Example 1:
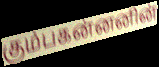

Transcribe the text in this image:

கும்பகன்னனின்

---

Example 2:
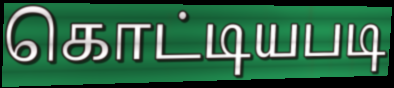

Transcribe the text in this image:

கொட்டியபடி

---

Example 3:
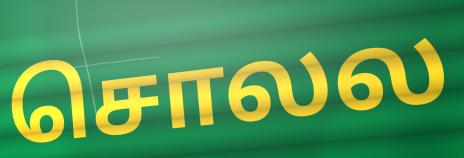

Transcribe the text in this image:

சொலல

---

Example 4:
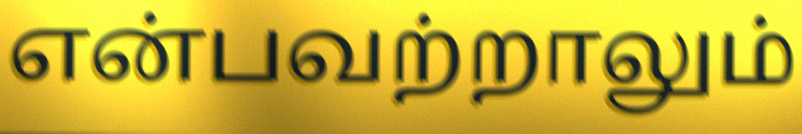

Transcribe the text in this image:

என்பவற்றாலும்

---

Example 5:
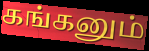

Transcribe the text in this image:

கங்கனும்